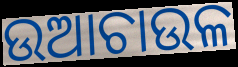
ଉଆଚାଉଳ